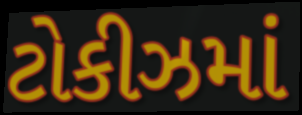
ટોકીઝમાં